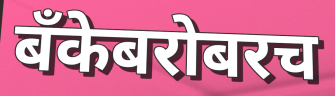
बँकेबरोबरच